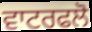
ਵਾਟਰਫਲੋ